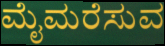
ಮೈಮರೆಸುವ